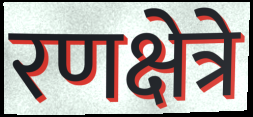
रणक्षेत्रे